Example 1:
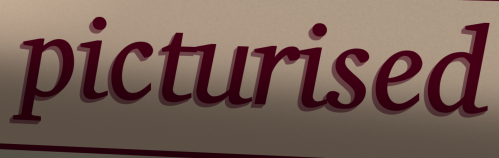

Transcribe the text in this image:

picturised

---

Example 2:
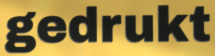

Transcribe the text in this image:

gedrukt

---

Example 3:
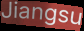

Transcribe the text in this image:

Jiangsu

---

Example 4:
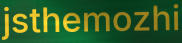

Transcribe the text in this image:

jsthemozhi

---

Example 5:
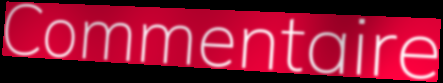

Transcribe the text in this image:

Commentaire